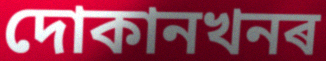
দোকানখনৰ